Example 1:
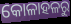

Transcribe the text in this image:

କୋଳାହଳରୁ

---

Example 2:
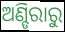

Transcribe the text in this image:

ଅଣ୍ଡିରାରୁ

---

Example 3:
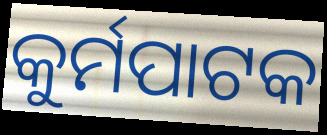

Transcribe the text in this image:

କୁର୍ମପାଟକ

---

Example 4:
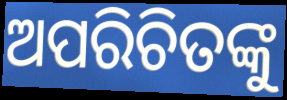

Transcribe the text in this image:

ଅପରିଚିତଙ୍କୁ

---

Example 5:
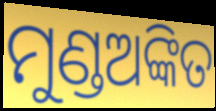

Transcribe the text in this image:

ମୁଣ୍ଡଅଙ୍କିତ